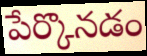
పేర్కొనడం